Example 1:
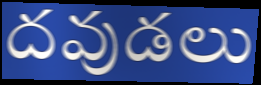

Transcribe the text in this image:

దవుడలు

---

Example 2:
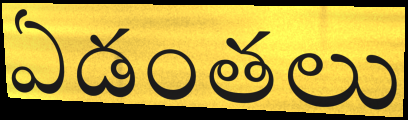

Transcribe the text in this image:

ఏడంతలు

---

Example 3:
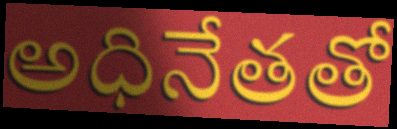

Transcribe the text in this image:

అధినేతతో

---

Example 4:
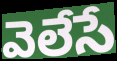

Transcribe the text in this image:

వెలేసే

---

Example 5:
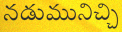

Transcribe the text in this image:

నడుమునిచ్చి